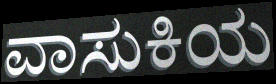
ವಾಸುಕಿಯ